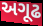
અગૂઢ